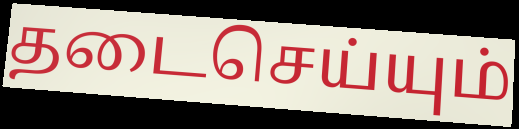
தடைசெய்யும்